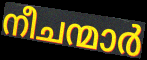
നീചന്മാർ